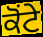
ਕੋਂਟੇ